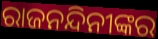
ରାଜନନ୍ଦିନୀଙ୍କର